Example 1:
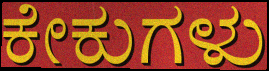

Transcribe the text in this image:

ಕೇಕುಗಳು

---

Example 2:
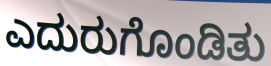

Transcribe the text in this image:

ಎದುರುಗೊಂಡಿತು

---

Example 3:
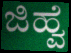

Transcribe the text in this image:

ಜಿಹ್ವೆ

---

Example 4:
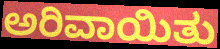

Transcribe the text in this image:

ಅರಿವಾಯಿತು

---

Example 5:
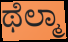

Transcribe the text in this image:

ಥೆಲ್ಮಾ